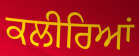
ਕਲੀਰਿਆਂ